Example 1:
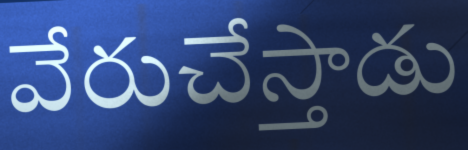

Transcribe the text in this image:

వేరుచేస్తాడు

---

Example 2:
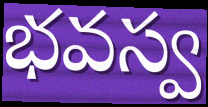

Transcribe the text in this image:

భవస్వ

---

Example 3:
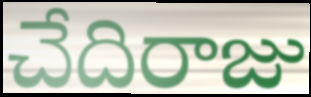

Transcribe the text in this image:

చేదిరాజు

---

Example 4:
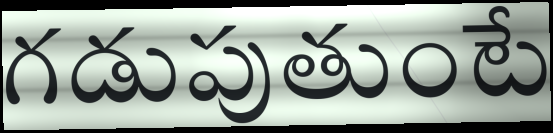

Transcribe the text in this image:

గడుపుతుంటే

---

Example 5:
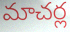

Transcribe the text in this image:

మాచర్ల